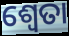
ଶ୍ୱେତା